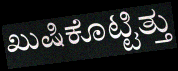
ಖುಷಿಕೊಟ್ಟಿತ್ತು